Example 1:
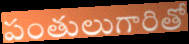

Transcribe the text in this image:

పంతులుగారితో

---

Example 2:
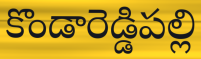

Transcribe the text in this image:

కొండారెడ్డిపల్లి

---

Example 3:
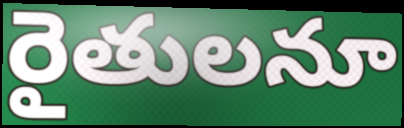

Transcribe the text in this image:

రైతులనూ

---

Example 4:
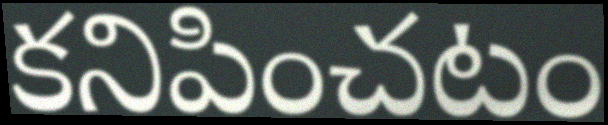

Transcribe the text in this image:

కనిపించటం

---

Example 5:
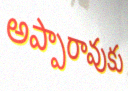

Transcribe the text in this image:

అప్పారావుకు